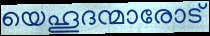
യെഹൂദന്മാരോട്